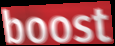
boost